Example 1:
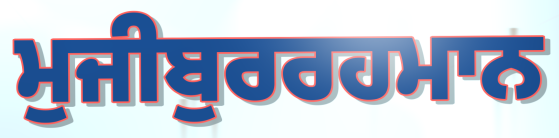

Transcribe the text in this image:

ਮੁਜੀਬੁਰਰਹਮਾਨ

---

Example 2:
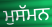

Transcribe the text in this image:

ਮੁਸੱਮਨ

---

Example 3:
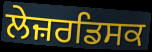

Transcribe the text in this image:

ਲੇਜ਼ਰਡਿਸਕ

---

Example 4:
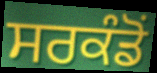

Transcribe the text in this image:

ਸਰਕੰਡੋਂ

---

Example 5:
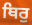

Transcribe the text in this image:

ਥਿਰੁ